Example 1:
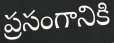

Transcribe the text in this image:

ప్రసంగానికి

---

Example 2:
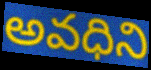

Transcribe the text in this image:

అవధిని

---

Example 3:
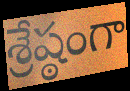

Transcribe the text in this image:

శ్రేష్ఠంగా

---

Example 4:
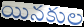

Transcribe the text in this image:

యినకుల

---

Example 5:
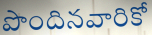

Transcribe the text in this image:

పొందినవారికో